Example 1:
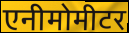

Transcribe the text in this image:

एनीमोमीटर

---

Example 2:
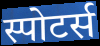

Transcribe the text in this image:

स्पोटर्स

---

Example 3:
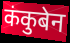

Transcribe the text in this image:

कंकुबेन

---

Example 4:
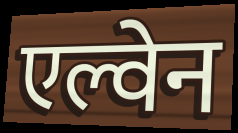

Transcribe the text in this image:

एल्वेन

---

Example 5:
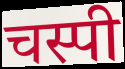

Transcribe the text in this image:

चस्पी